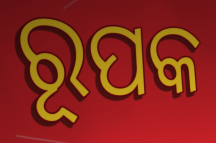
ରୂପକ